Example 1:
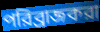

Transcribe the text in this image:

পরিব্রাজকরা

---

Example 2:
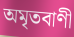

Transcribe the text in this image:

অমৃতবাণী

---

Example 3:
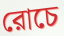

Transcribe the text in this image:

রোচে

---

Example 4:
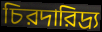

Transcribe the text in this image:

চিরদারিদ্র্য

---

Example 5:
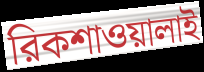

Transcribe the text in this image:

রিকশাওয়ালাই